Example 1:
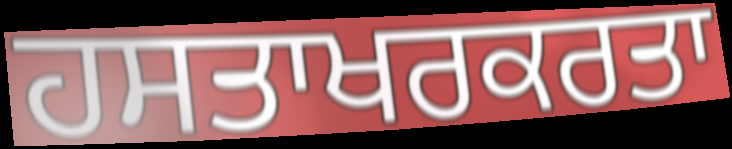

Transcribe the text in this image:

ਹਸਤਾਖਰਕਰਤਾ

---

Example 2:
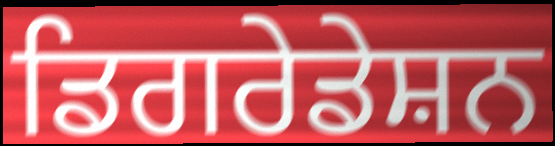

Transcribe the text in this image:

ਡਿਗਰੇਡੇਸ਼ਨ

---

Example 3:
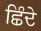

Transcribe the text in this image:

ਛਿੰਦੇ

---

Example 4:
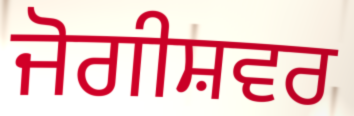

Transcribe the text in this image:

ਜੋਗੀਸ਼ਵਰ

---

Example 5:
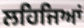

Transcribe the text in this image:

ਲਹਿਜਿਆਂ